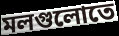
মলগুলোতে